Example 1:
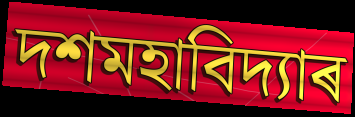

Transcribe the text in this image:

দশমহাবিদ্যাৰ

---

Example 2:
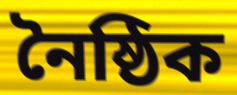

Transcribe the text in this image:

নৈষ্ঠিক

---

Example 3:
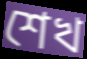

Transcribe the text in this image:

শেখ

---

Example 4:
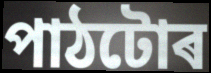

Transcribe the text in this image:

পাঠটোৰ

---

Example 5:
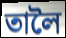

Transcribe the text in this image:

তালৈ